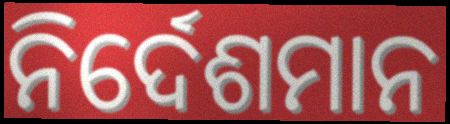
ନିର୍ଦେଶମାନ